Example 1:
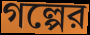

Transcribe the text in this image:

গল্পের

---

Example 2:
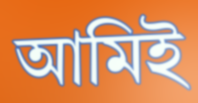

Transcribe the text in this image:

আমিই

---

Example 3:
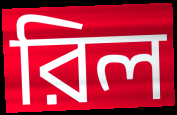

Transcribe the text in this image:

রিল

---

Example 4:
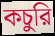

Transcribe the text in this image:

কচুরি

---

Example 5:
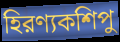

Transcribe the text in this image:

হিরণ্যকশিপু